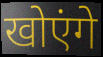
खोएंगे